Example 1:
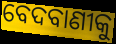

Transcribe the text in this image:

ବେଦବାଣୀକୁ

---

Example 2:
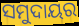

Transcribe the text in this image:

ସମୁଦାୟର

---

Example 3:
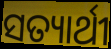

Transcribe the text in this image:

ସତ୍ୟାର୍ଥୀ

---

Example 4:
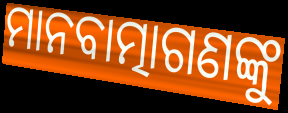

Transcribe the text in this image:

ମାନବାତ୍ମାଗଣଙ୍କୁ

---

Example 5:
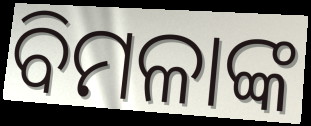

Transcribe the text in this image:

ବିମଳାଙ୍କ